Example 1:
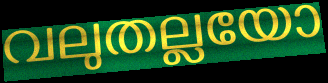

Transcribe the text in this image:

വലുതല്ലയോ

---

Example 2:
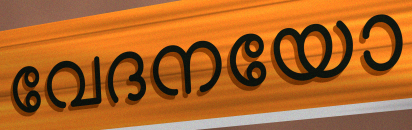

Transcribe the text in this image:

വേദനയോ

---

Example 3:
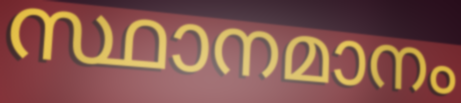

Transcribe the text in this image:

സ്ഥാനമാനം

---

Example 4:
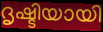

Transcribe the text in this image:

ദൃഷ്ടിയായി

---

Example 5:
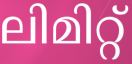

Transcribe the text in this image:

ലിമിറ്റ്